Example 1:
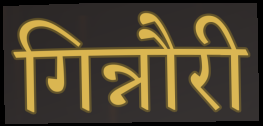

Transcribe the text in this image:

गिन्नौरी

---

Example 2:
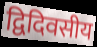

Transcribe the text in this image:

द्विदिवसीय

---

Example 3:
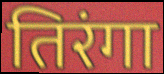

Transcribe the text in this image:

तिरंगा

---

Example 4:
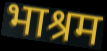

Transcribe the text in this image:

भाश्रम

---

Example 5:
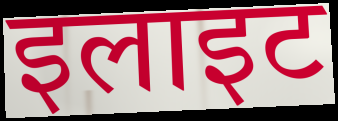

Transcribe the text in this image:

इलाइट